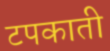
टपकाती